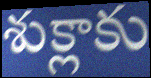
శుక్లాకు